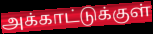
அக்காட்டுக்குள்